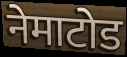
नेमाटोड